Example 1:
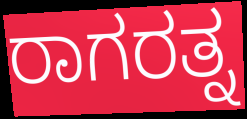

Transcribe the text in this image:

ರಾಗರತ್ನ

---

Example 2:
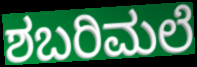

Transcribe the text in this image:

ಶಬರಿಮಲೆ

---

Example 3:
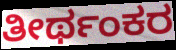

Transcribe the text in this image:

ತೀರ್ಥಂಕರ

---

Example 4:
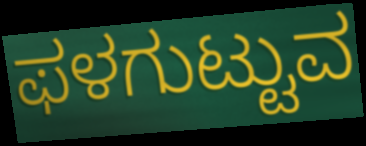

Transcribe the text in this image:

ಫಳಗುಟ್ಟುವ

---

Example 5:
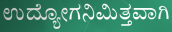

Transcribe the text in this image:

ಉದ್ಯೋಗನಿಮಿತ್ತವಾಗಿ